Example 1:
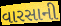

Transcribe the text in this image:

વારસાની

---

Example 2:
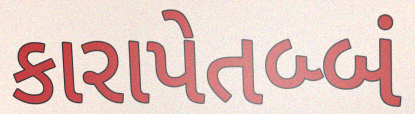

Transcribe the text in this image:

કારાપેતબ્બં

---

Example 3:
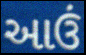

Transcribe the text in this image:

આઉં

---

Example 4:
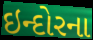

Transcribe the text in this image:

ઇન્દોરના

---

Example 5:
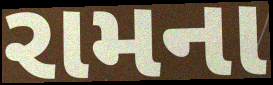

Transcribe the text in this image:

રામના